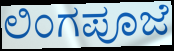
ಲಿಂಗಪೂಜೆ